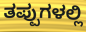
ತಪ್ಪುಗಳಲ್ಲಿ